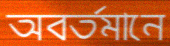
অবর্তমানে